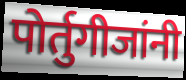
पोर्तुगीजांनी